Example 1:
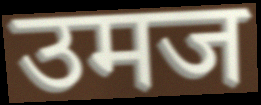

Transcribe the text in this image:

उमज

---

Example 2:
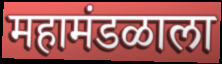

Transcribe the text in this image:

महामंडळाला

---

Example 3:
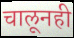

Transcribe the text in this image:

चालूनही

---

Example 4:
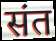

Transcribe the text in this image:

संत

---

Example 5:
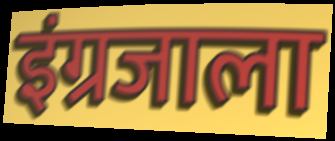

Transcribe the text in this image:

इंग्रजाला